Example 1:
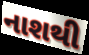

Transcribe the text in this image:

નાશથી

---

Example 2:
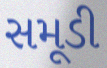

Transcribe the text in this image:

સમૂડી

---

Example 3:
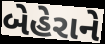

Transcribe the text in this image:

બેહેરાને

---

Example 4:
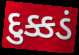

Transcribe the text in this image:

દુક્કડં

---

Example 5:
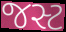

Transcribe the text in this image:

જસ્ટ